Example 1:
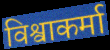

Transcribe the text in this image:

विश्वाकर्मा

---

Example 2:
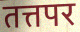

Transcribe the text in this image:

तत्तपर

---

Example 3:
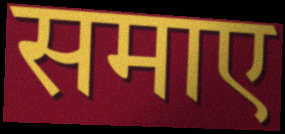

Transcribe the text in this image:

समाए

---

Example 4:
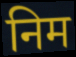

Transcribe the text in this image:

निम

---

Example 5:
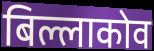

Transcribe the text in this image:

बिल्लाकोव